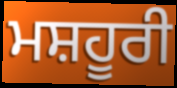
ਮਸ਼ਹੂਰੀ